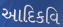
આદિકવિ